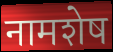
नामशेष